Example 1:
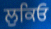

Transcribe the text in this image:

ਲੁਕਿਓ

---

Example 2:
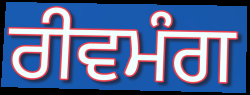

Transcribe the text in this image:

ਰੀਵਮੰਗ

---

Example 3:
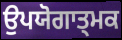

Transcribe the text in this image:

ਉਪਯੋਗਾਤ੍ਮਕ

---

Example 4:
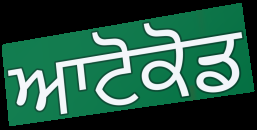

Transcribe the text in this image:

ਆਟੋਕੋਡ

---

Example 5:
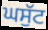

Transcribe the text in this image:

ਘਸੁੱਟ